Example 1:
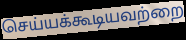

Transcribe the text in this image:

செய்யக்கூடியவற்றை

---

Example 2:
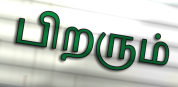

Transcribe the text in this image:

பிறரும்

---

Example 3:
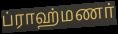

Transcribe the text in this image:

ப்ராஹ்மணர்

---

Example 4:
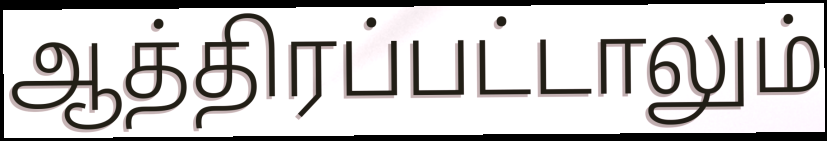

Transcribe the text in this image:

ஆத்திரப்பட்டாலும்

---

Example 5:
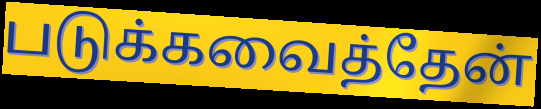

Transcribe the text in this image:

படுக்கவைத்தேன்